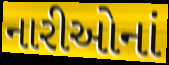
નારીઓનાં